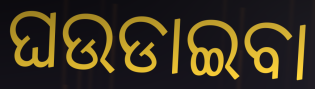
ଘଉଡାଇବା